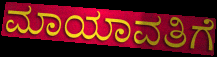
ಮಾಯಾವತಿಗೆ